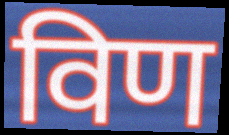
विण